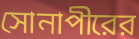
সোনাপীরের